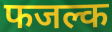
फजल्क